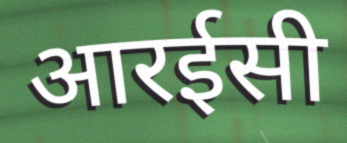
आरईसी